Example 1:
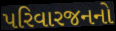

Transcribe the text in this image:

પરિવારજનનો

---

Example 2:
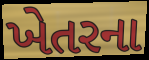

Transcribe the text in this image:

ખેતરના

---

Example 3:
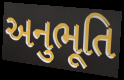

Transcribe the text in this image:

અનુભૂતિ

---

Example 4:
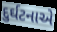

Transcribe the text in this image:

દુર્ઘટનાએ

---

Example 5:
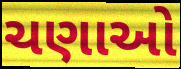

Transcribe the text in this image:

ચણાઓ